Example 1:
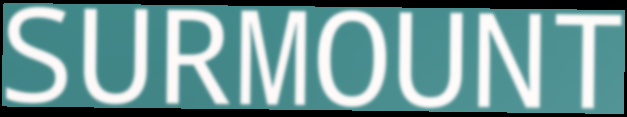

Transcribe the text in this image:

SURMOUNT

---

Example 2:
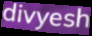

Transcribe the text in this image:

divyesh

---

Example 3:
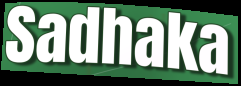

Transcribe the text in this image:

Sadhaka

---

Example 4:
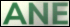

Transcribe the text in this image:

ANE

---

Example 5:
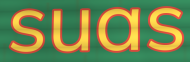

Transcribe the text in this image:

suas